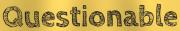
Questionable